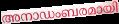
അനാഡംബരമായി